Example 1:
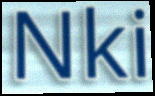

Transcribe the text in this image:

Nki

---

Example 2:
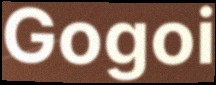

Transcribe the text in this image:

Gogoi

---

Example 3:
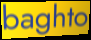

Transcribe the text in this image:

baghto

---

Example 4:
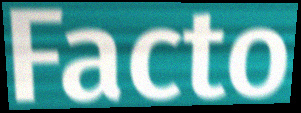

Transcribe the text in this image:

Facto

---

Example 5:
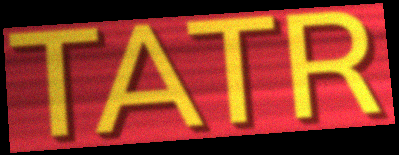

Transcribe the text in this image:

TATR